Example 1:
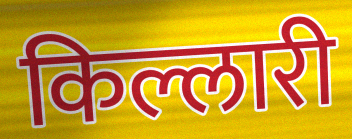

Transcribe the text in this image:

किल्लारी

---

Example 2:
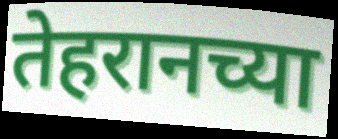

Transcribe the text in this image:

तेहरानच्या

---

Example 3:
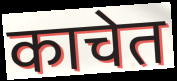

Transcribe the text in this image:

काचेत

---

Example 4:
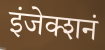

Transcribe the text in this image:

इंजेक्शनं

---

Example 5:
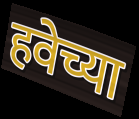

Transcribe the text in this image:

हवेच्या